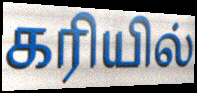
கரியில்